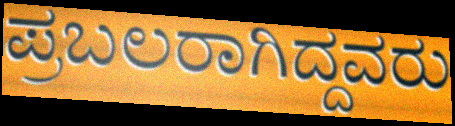
ಪ್ರಬಲರಾಗಿದ್ದವರು